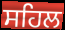
ਸਹਿਲ